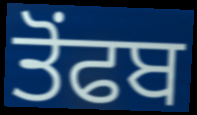
ਤੋਂਫਬ